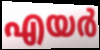
എയർ